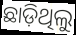
ଛାଡ଼ିଥିଲୁ